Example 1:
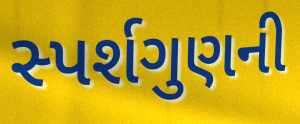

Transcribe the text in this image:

સ્પર્શગુણની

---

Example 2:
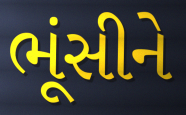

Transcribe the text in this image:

ભૂંસીને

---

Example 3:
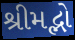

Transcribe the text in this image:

શ્રીમદ્ભો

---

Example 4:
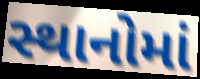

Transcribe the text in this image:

સ્થાનોમાં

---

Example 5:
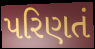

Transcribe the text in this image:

પરિણતં